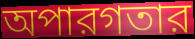
অপারগতার